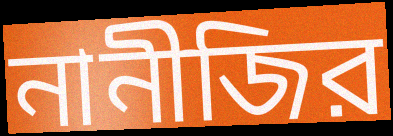
নানীজির